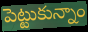
పెట్టుకున్నాం